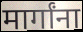
मार्गांना